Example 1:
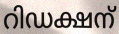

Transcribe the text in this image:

റിഡക്ഷന്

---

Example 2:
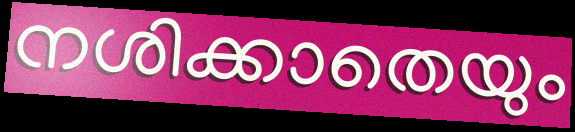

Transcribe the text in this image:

നശിക്കാതെയും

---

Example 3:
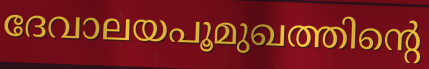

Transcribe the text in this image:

ദേവാലയപൂമുഖത്തിന്റെ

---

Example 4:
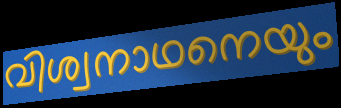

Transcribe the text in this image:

വിശ്വനാഥനെയും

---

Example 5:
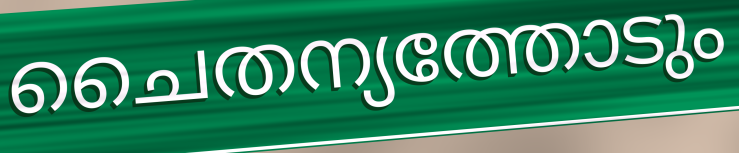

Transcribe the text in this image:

ചൈതന്യത്തോടും